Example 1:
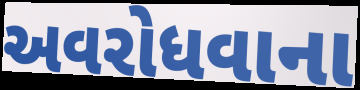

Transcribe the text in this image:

અવરોધવાના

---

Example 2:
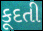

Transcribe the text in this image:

કૂદતી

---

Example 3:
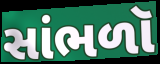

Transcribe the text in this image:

સાંભળૉ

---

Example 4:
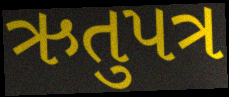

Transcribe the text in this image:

ઋતુપત્ર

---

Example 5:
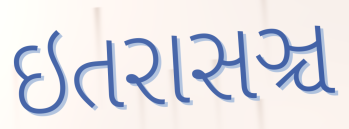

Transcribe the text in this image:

ઇતરાસઞ્ચ